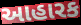
આહારક